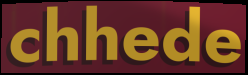
chhede